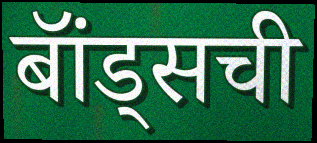
बॉंड्सची